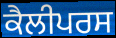
ਕੈਲੀਪਰਸ